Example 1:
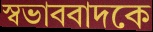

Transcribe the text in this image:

স্বভাববাদকে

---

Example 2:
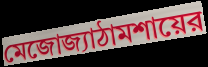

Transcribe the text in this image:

মেজোজ্যাঠামশায়ের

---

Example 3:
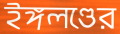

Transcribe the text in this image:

ইঙ্গলণ্ডের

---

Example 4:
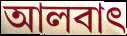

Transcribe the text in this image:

আলবাৎ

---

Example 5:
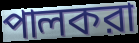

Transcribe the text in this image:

পালকরা